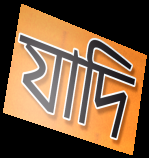
যাদি